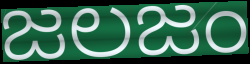
జలజం